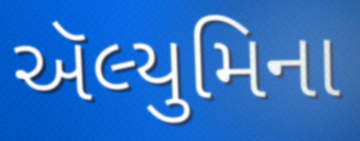
ઍલ્યુમિના